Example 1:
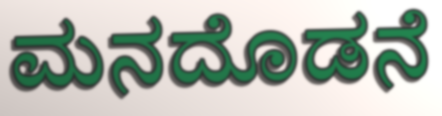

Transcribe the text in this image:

ಮನದೊಡನೆ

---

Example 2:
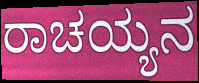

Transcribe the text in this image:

ರಾಚಯ್ಯನ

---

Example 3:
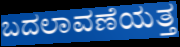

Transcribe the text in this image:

ಬದಲಾವಣೆಯತ್ತ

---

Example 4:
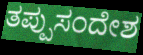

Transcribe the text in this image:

ತಪ್ಪುಸಂದೇಶ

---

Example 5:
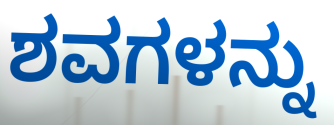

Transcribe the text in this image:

ಶವಗಳನ್ನು